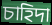
চাহিদা